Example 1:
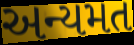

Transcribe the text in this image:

અન્યમત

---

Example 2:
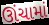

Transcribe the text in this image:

ઊંચામાં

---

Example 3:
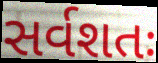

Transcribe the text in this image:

સર્વશતઃ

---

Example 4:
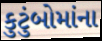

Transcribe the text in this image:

કુટુંબોમાંના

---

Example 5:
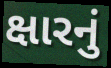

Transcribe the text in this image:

ક્ષારનું